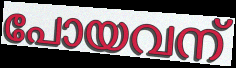
പോയവന്